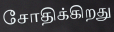
சோதிக்கிறது